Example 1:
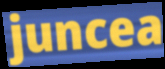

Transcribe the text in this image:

juncea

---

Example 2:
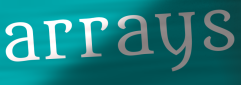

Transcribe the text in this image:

arrays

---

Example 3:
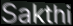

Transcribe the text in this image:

Sakthi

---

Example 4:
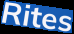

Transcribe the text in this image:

Rites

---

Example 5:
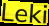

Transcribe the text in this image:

Leki